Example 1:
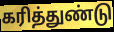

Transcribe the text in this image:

கரித்துண்டு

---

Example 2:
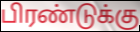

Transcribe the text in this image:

பிரண்டுக்கு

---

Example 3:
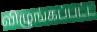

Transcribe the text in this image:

விழுங்கப்பட்ட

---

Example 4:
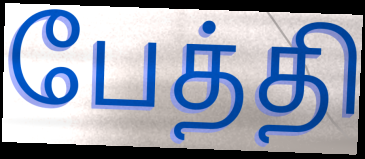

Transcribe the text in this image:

பேத்தி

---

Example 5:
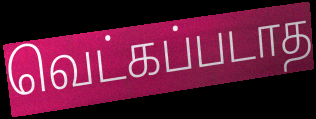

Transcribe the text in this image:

வெட்கப்படாத